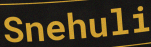
Snehuli